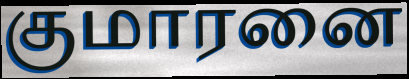
குமாரனை